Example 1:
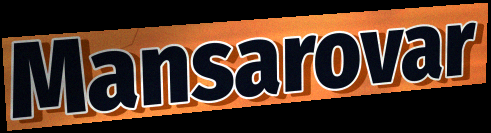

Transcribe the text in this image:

Mansarovar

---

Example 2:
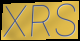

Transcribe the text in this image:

XRS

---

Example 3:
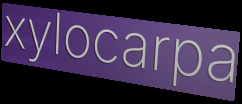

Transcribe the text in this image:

xylocarpa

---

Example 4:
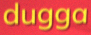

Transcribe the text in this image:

dugga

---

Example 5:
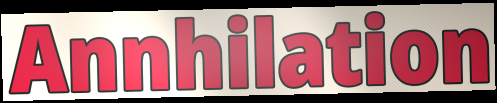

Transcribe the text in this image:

Annhilation